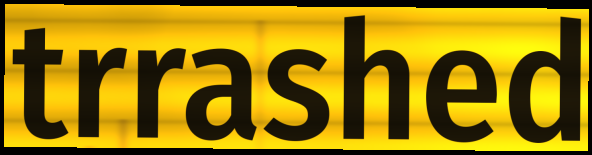
trrashed